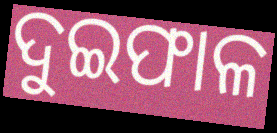
ଦୁଇଫାଳ